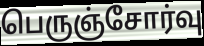
பெருஞ்சோர்வு